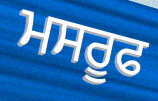
ਮਸਰੂਫ